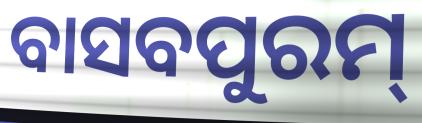
ବାସବପୁରମ୍